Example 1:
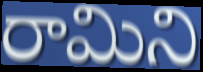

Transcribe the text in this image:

రామిని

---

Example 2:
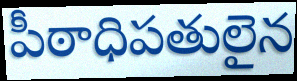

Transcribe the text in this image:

పీఠాధిపతులైన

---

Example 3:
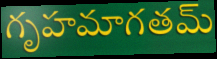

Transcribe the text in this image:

గృహమాగతమ్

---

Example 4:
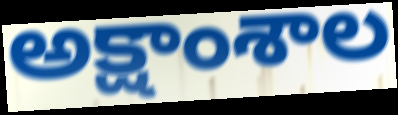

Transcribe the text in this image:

అక్షాంశాల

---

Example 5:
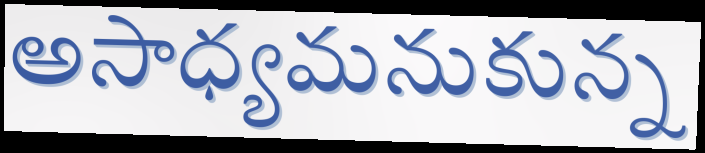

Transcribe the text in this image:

అసాధ్యమనుకున్న